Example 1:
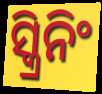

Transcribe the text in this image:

ସ୍କ୍ରିନିଂ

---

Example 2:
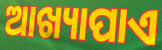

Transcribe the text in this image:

ଆଖ୍ୟାପାଏ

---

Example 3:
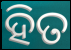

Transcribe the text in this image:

ହିତ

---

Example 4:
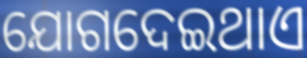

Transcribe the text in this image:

ଯୋଗଦେଇଥାଏ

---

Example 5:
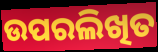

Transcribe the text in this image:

ଉପରଲିଖିତ